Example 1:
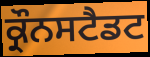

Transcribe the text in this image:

ਕ੍ਰੌਨਸਟੈਡਟ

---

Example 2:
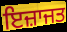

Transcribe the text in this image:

ਇਜ਼ਾਜਤ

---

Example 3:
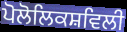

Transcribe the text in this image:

ਪੋਲੋਲਿਕਸ਼ਵਿਲੀ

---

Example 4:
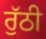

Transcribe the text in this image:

ਰੁੱਠੀ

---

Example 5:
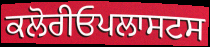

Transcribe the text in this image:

ਕਲੋਰੀਓਪਲਾਸਟਸ